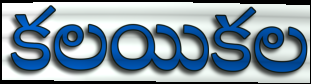
కలయికల